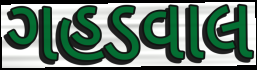
ગહડવાલ